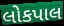
લોકપાલ